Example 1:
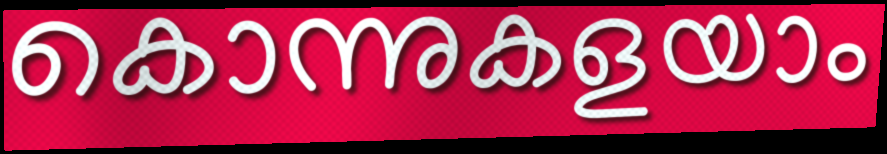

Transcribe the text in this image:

കൊന്നുകളയാം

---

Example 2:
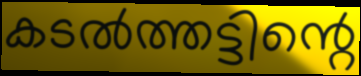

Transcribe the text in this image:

കടൽത്തട്ടിന്റെ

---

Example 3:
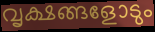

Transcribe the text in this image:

വൃക്ഷങ്ങളോടും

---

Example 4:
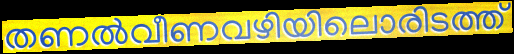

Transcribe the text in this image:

തണൽവീണവഴിയിലൊരിടത്ത്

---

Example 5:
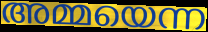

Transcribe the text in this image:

അമ്മയെന്ന